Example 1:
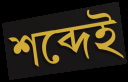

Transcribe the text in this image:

শব্দেই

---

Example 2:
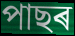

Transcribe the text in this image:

পাছৰ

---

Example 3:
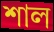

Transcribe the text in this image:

শাল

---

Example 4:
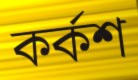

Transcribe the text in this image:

কৰ্কশ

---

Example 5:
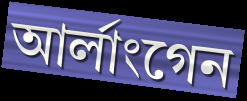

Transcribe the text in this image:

আৰ্লাংগেন